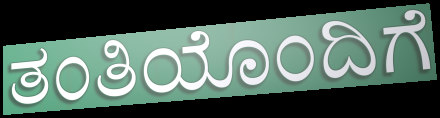
ತಂತಿಯೊಂದಿಗೆ